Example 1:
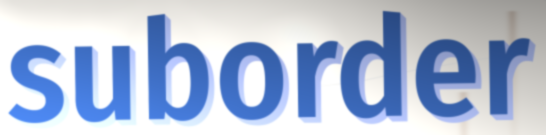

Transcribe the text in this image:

suborder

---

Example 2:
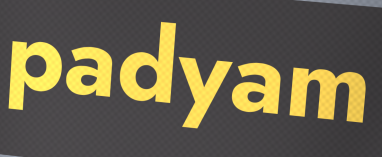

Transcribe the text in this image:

padyam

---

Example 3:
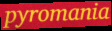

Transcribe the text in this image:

pyromania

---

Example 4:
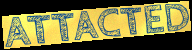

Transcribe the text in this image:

ATTACTED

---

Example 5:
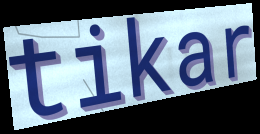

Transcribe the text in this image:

tikar